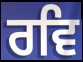
ਰਵਿ